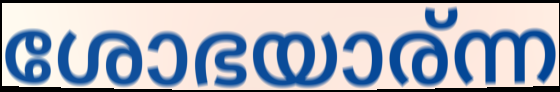
ശോഭയാര്ന്ന